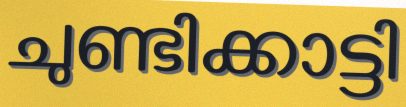
ചുണ്ടിക്കാട്ടി